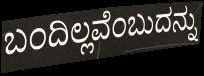
ಬಂದಿಲ್ಲವೆಂಬುದನ್ನು